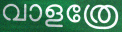
വാളത്രേ